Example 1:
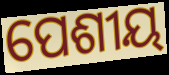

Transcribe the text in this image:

ପେଶୀୟ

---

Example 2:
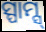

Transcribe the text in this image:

ସ୍ପାମ୍ସ୍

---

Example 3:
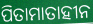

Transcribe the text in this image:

ପିତାମାତାହୀନ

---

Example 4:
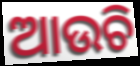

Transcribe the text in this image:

ଆଉଚି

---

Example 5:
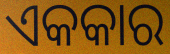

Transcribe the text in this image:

ଏକକାର